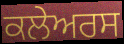
ਕਲੇਅਰਸ